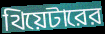
থিয়েটারের